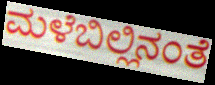
ಮಳೆಬಿಲ್ಲಿನಂತೆ